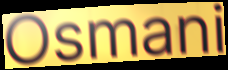
Osmani